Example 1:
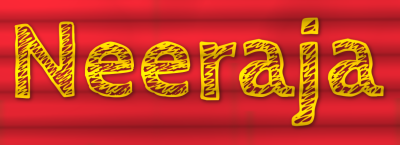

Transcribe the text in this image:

Neeraja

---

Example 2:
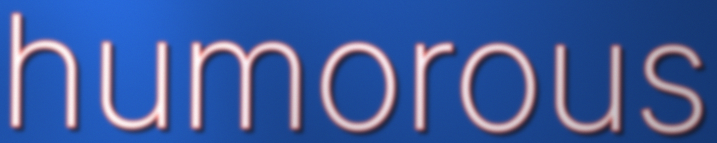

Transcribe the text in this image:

humorous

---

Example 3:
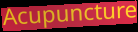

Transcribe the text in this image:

Acupuncture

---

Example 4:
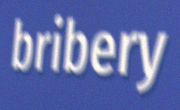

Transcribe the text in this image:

bribery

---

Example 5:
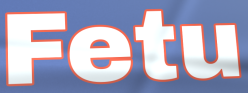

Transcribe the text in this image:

Fetu